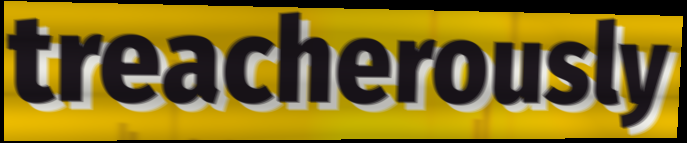
treacherously